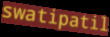
swatipatil